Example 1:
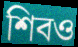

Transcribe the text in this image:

শিবও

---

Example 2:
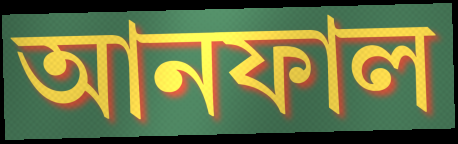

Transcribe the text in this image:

আনফাল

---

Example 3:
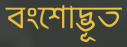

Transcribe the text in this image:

বংশোদ্ভূত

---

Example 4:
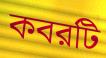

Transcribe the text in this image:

কবরটি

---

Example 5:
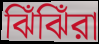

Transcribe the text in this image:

ঝিঁঝিঁরা